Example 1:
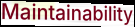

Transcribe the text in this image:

Maintainability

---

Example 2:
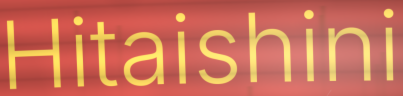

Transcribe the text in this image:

Hitaishini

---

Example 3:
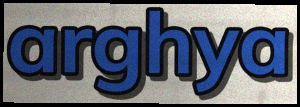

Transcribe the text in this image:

arghya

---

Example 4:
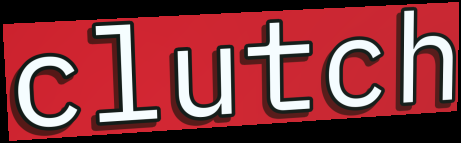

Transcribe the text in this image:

clutch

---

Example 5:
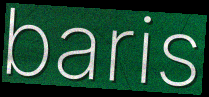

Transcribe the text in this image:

baris